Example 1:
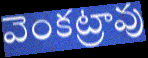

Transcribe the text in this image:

వెంకట్రావు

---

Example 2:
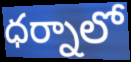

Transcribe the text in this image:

ధర్నాలో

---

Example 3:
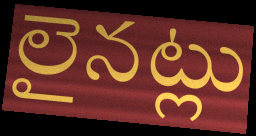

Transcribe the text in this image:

లైనట్లు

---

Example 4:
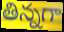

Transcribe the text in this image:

తిన్నగా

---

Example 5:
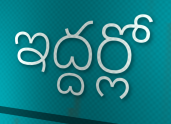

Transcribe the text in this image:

ఇద్దర్లో